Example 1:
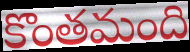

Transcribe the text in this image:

కొంతమంది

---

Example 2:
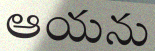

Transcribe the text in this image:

ఆయను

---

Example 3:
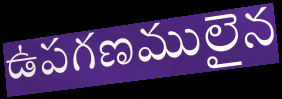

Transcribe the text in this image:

ఉపగణములైన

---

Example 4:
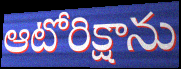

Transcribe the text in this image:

ఆటోరిక్షాను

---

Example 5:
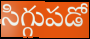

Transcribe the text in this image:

సిగ్గుపడో